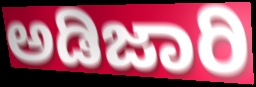
ಅಡಿಜಾರಿ